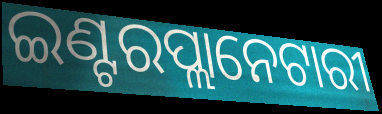
ଇଣ୍ଟରପ୍ଲାନେଟାରୀ